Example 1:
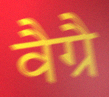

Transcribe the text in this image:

वैग्रै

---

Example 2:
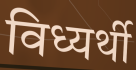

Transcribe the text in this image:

विध्यर्थी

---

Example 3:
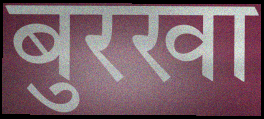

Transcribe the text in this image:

बुरखा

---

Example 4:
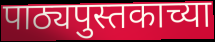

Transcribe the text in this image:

पाठ्यपुस्तकाच्या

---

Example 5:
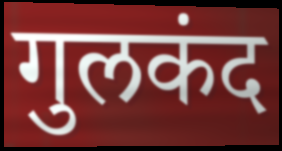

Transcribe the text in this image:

गुलकंद